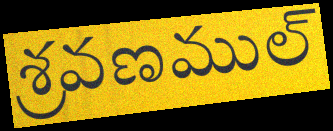
శ్రవణముల్